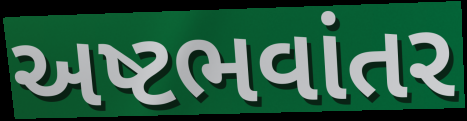
અષ્ટભવાંતર